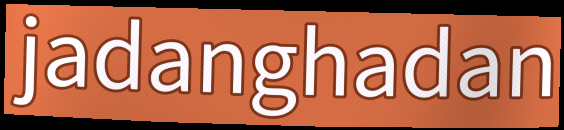
jadanghadan